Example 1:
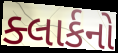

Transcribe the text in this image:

ક્લાર્કનો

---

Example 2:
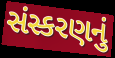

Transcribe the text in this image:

સંસ્કરણનું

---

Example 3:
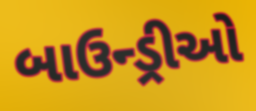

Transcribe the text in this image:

બાઉન્ડ્રીઓ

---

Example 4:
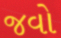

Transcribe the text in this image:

જવો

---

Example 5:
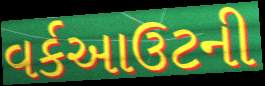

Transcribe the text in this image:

વર્કઆઉટની